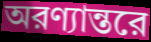
অরণ্যান্তরে